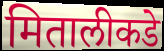
मितालीकडे